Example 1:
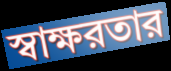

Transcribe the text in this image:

স্বাক্ষরতার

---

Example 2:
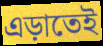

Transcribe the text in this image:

এড়াতেই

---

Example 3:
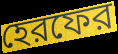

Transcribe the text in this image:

হেরফের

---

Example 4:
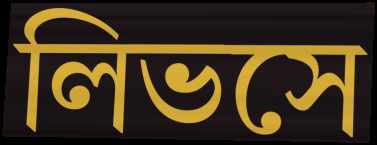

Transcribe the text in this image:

লিভসে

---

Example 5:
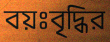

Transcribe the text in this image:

বয়ঃবৃদ্ধির